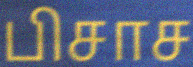
பிசாச